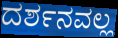
ದರ್ಶನವಲ್ಲ